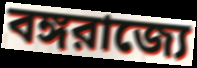
বঙ্গরাজ্যে